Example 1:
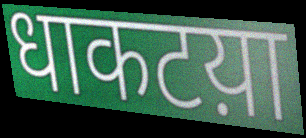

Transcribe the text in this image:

धाकटय़ा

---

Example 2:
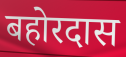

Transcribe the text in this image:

बहोरदास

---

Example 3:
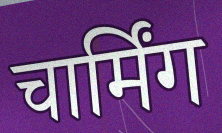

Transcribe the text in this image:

चार्मिंग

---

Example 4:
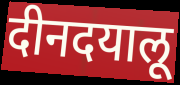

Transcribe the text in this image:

दीनदयालू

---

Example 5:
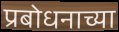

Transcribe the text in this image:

प्रबोधनाच्या